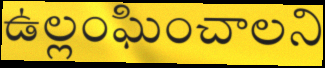
ఉల్లంఘించాలని